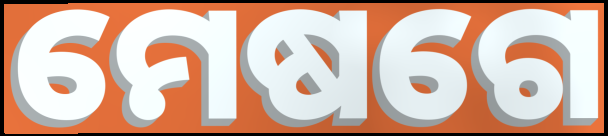
ମେଷଗେ